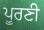
ਪੂਰਣੀ